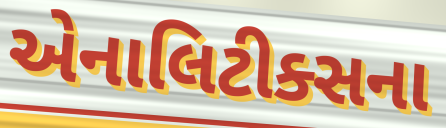
એનાલિટીક્સના